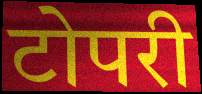
टोपरी